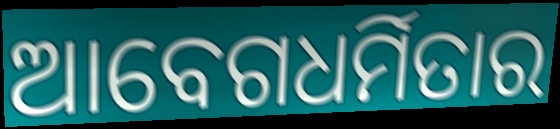
ଆବେଗଧର୍ମିତାର